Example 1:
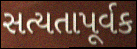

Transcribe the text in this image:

સત્યતાપૂર્વક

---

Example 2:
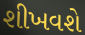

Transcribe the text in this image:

શીખવશે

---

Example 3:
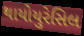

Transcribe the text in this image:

થાયોયુરેસિલ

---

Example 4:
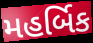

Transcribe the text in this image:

મહર્બિક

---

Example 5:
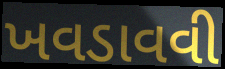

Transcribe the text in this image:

ખવડાવવી